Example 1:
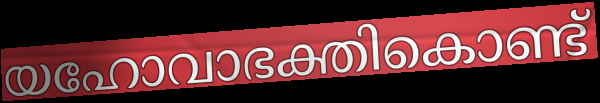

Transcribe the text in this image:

യഹോവാഭക്തികൊണ്ട്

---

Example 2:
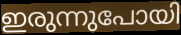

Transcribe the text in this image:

ഇരുന്നുപോയി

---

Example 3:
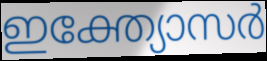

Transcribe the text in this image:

ഇക്ത്യോസർ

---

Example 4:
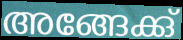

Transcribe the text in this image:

അങ്ങേക്കു്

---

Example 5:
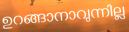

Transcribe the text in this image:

ഉറങ്ങാനാവുന്നില്ല